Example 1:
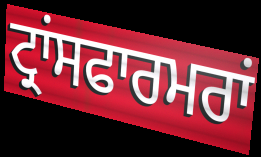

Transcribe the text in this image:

ਟ੍ਰਾਂਸਫਾਰਮਰਾਂ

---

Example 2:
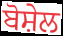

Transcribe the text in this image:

ਬੋਸ਼ੇਲ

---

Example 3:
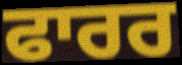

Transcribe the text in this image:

ਫਾਰਰ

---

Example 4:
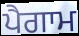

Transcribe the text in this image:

ਪੈਗਾਮ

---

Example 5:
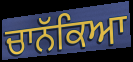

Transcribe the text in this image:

ਚਾਨੱਕਿਆ